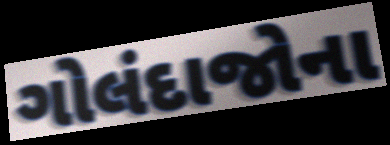
ગોલંદાજોના